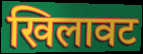
खिलावट